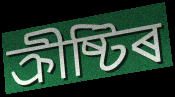
ক্ৰীষ্টিৰ